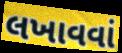
લખાવવાં